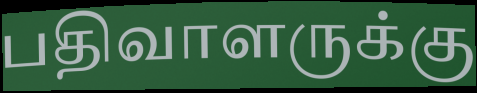
பதிவாளருக்கு